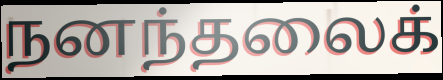
நனந்தலைக்